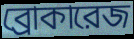
ব্রোকারেজ